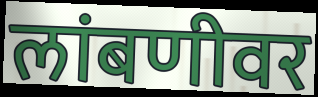
लांबणीवर